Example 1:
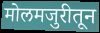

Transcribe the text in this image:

मोलमजुरीतून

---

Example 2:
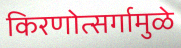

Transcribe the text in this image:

किरणोत्सर्गामुळे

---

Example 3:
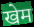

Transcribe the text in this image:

खेम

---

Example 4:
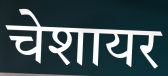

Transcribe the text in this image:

चेशायर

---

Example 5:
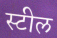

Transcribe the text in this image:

स्टील